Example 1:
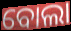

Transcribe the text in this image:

ବୋଲା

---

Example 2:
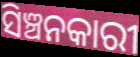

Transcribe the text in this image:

ସିଞ୍ଚନକାରୀ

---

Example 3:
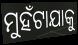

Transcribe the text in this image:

ମୁହଁଟାଯାକୁ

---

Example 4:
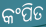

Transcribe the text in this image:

କଂପିତ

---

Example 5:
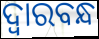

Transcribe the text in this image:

ଦ୍ବାରବନ୍ଧ